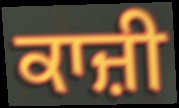
ਕਾਜ਼ੀ